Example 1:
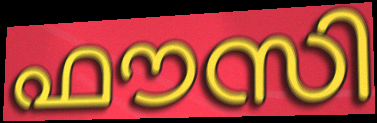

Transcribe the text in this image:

ഫൗസി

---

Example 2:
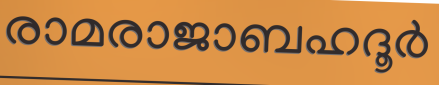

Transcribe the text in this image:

രാമരാജാബഹദൂർ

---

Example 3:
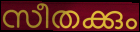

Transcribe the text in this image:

സീതക്കും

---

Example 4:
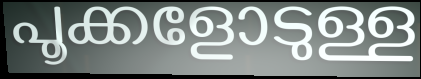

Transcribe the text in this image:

പൂക്കളോടുള്ള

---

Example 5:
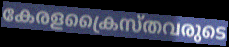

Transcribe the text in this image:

കേരളക്രൈസ്തവരുടെ